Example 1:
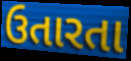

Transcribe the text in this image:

ઉતારતા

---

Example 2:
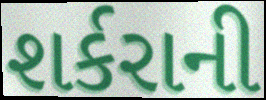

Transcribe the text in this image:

શર્કરાની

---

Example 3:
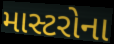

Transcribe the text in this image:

માસ્ટરોના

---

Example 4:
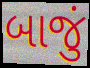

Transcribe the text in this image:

બાજું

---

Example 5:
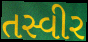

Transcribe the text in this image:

તસ્વીર